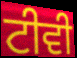
ਟੀਵੀ